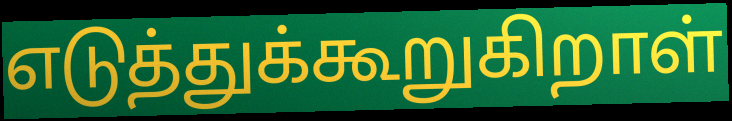
எடுத்துக்கூறுகிறாள்